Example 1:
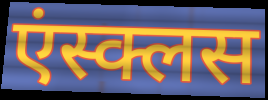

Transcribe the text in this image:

एंस्क्लस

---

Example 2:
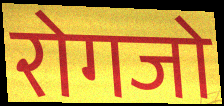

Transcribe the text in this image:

रोगजो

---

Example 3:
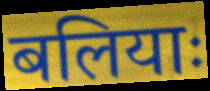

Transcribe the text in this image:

बलियाः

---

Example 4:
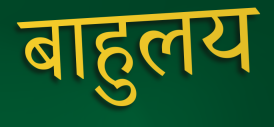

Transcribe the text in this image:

बाहुलय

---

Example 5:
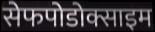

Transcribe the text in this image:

सेफपोडोक्साइम